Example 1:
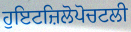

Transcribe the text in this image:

ਹੁਇਟਜ਼ਿਲੋਪੋਚਟਲੀ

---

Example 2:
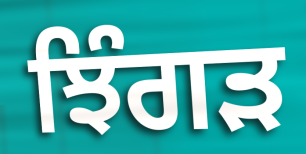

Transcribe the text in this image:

ਝਿੰਗੜ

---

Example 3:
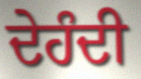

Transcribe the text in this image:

ਦੇਹੰਦੀ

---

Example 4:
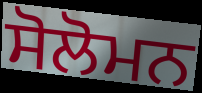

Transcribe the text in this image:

ਸੋਲੋਮਨ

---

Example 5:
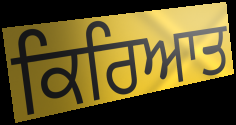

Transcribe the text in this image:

ਕਿਰਿਆਤ